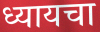
ध्यायचा